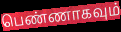
பெண்ணாகவும்